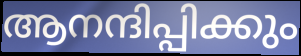
ആനന്ദിപ്പിക്കും